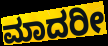
ಮಾದರೀ